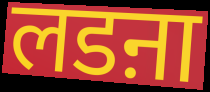
लडऩा